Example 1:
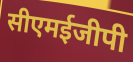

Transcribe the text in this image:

सीएमईजीपी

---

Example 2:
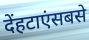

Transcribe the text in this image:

देंहटाएंसबसे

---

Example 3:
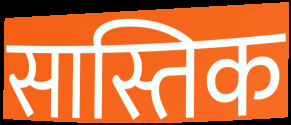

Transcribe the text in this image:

सास्तिक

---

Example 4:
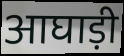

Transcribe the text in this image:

आघाड़ी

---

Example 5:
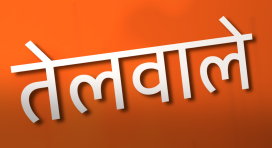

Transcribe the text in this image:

तेलवाले